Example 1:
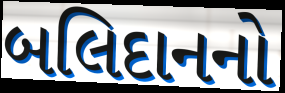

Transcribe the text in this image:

બલિદાનનો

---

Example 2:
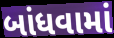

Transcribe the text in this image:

બાંધવામાં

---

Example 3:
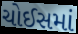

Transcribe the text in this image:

ચોઈસમાં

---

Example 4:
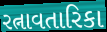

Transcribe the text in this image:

રત્નાવતારિકા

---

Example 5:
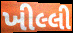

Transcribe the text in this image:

ખીલ્લી